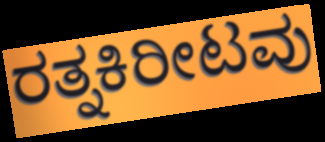
ರತ್ನಕಿರೀಟವು